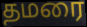
தமரை